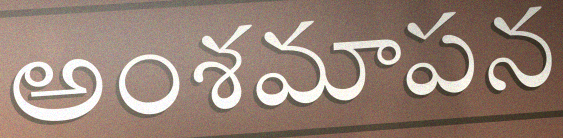
అంశమాపన